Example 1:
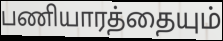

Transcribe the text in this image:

பணியாரத்தையும்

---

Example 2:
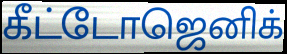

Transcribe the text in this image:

கீட்டோஜெனிக்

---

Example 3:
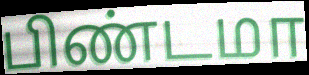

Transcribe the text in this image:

பிண்டமா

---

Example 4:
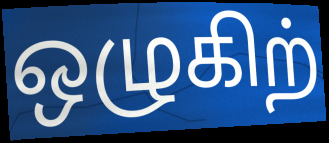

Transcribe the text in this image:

ஒழுகிற்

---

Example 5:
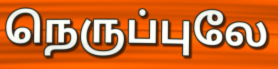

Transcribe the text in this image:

நெருப்புலே